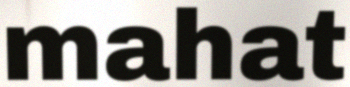
mahat